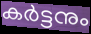
കർട്ടനും